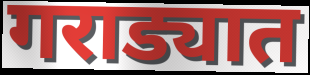
गराड्यात